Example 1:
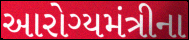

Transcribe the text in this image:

આરોગ્યમંત્રીના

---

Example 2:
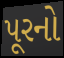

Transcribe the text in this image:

પૂરનો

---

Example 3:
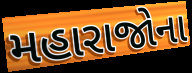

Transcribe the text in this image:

મહારાજોના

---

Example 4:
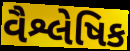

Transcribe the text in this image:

વૈશ્લેષિક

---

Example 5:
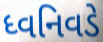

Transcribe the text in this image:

ધ્વનિવડે